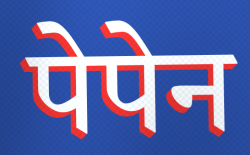
पेपेन